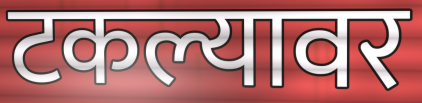
टकल्यावर